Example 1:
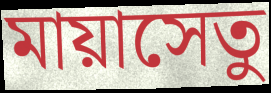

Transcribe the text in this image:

মায়াসেতু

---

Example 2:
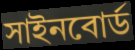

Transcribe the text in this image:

সাইনবোর্ড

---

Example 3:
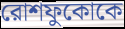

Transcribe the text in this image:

রোশফুকোকে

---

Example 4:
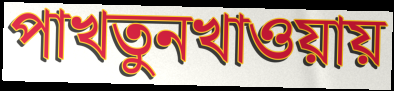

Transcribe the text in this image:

পাখতুনখাওয়ায়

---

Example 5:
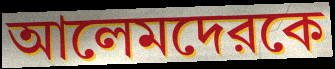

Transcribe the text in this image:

আলেমদেরকে